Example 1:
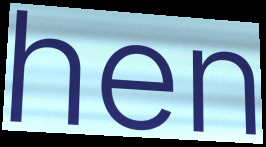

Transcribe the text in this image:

hen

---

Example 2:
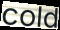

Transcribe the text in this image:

cold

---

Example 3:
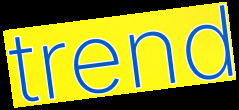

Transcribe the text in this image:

trend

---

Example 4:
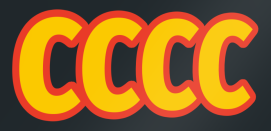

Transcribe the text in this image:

CCCC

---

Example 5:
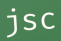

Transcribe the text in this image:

jsc